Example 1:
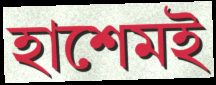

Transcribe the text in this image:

হাশেমই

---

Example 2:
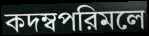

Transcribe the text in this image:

কদম্বপরিমলে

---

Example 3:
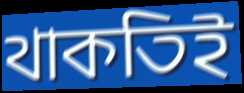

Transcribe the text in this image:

থাকতিই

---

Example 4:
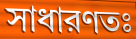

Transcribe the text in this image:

সাধারণতঃ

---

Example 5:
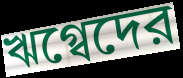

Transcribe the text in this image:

ঋগ্বেদের